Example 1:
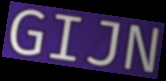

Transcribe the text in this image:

GIJN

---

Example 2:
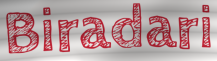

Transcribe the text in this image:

Biradari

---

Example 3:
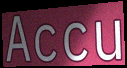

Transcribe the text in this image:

Accu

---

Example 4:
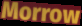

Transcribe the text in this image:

Morrow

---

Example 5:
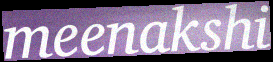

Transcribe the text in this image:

meenakshi